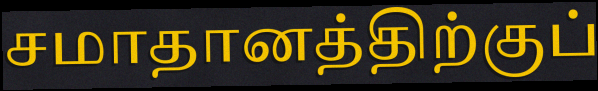
சமாதானத்திற்குப்